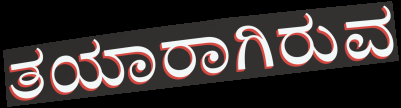
ತಯಾರಾಗಿರುವ